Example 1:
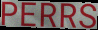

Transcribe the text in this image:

PERRS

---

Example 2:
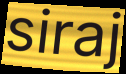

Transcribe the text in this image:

siraj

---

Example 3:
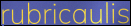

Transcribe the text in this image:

rubricaulis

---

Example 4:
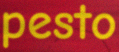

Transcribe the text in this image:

pesto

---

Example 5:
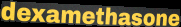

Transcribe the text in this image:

dexamethasone